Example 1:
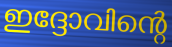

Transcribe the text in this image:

ഇദ്ദോവിന്റെ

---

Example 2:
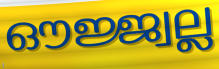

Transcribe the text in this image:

ഔജ്ജ്വല്ല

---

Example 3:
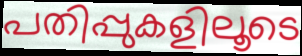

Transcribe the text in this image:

പതിപ്പുകളിലൂടെ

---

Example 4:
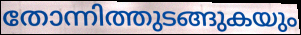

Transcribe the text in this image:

തോന്നിത്തുടങ്ങുകയും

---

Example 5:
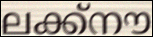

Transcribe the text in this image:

ലക്ക്നൗ